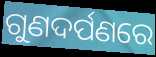
ଗୁଣଦର୍ପଣରେ